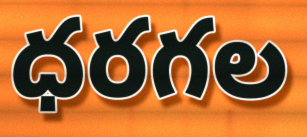
ధరగల